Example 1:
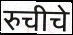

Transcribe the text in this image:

रुचीचे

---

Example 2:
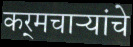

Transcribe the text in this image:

कर्मचाऱ्यांचे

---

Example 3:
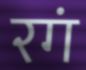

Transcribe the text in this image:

रगं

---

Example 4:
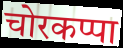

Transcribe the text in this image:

चोरकप्पा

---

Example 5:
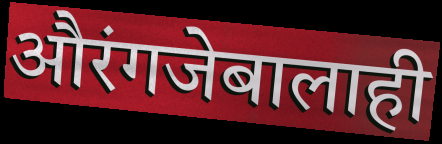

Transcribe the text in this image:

औरंगजेबालाही